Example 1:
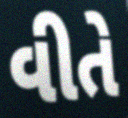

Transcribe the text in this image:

વીતે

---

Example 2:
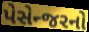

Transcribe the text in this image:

પેસેન્જરનો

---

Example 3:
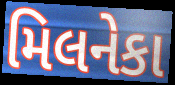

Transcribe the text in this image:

મિલનેકા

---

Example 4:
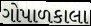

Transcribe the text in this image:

ગોપાળકાલા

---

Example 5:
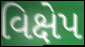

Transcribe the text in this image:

વિક્ષેપ